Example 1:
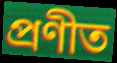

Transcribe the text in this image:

প্রণীত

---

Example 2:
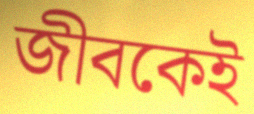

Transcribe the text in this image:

জীবকেই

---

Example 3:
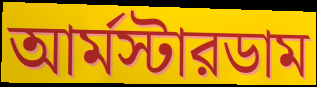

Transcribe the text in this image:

আর্মস্টারডাম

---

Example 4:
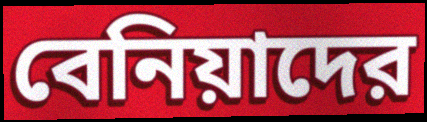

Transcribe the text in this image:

বেনিয়াদের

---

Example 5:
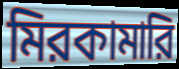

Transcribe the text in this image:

মিরকামারি